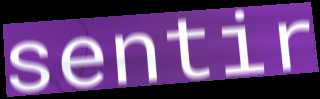
sentir